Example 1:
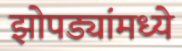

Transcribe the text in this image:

झोपड्यांमध्ये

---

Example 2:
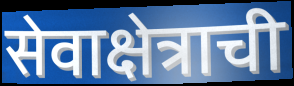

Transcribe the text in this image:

सेवाक्षेत्राची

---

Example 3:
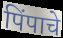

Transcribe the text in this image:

पिंपाचे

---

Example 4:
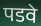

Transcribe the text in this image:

पडवे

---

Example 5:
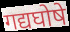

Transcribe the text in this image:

गद्यघोषे